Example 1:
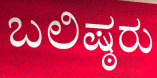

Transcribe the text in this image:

ಬಲಿಷ್ಠರು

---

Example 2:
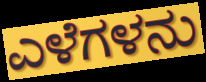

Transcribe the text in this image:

ಎಳೆಗಳನು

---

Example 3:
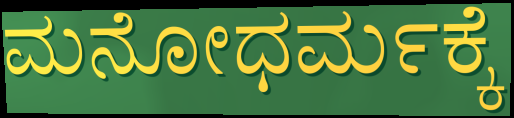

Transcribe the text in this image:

ಮನೋಧರ್ಮಕ್ಕೆ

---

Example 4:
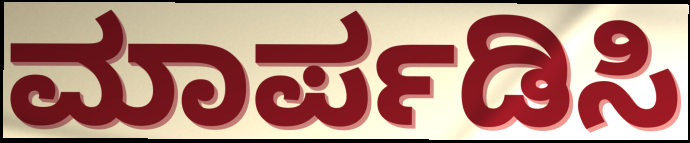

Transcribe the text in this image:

ಮಾರ್ಪಡಿಸಿ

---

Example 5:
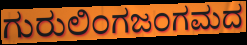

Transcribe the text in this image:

ಗುರುಲಿಂಗಜಂಗಮದ